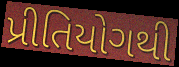
પ્રીતિયોગથી